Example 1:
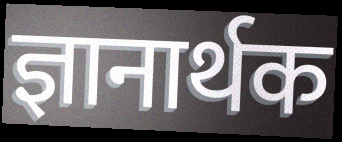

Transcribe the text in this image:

ज्ञानार्थक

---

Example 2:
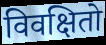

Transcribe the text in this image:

विवक्षितो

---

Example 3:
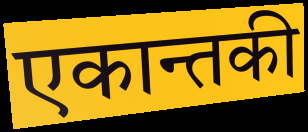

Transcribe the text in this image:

एकान्तकी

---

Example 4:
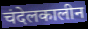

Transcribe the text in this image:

चंदेलकालीन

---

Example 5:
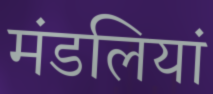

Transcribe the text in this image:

मंडलियां